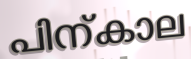
പിന്കാല